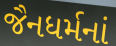
જૈનધર્મનાં